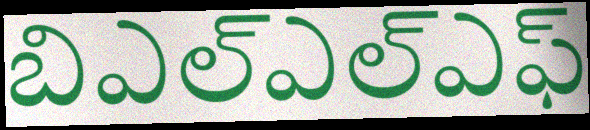
బిఎల్ఎల్ఎఫ్